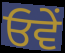
ਓਵੇਂ